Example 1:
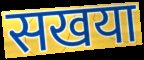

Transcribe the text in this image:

सखया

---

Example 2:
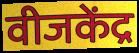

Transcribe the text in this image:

वीजकेंद्र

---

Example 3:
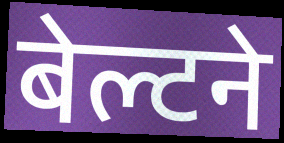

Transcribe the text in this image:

बेल्टने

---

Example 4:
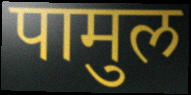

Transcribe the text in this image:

पामुल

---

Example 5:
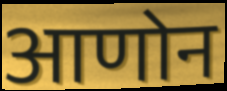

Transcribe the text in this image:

आणोन